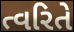
ત્વરિતે